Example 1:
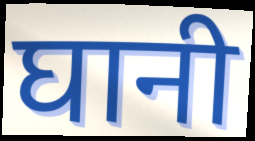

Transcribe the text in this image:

घानी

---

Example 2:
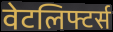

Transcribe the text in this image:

वेटलिफ्टर्स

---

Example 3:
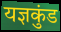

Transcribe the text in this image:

यज्ञकुंड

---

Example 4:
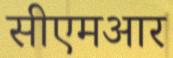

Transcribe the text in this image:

सीएमआर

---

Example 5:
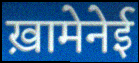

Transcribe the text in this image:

ख़ामेनेई